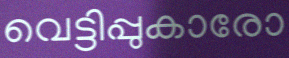
വെട്ടിപ്പുകാരോ